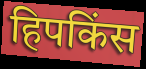
हिपकिंस